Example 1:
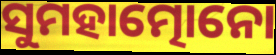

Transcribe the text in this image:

ସୁମହାତ୍ମୋନୋ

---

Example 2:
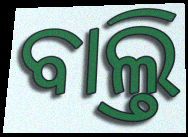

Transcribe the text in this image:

ବାଲ୍ତି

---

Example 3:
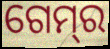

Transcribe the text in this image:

ଗେମ୍‌ର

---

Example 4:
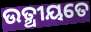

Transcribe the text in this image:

ଉତ୍ଥୀୟତେ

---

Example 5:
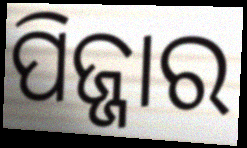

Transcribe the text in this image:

ପିଜ୍ଜାର